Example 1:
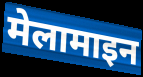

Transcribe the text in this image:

मेलामाइन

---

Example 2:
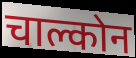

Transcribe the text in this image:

चाल्कोन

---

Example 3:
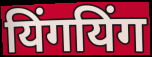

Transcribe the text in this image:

यिंगयिंग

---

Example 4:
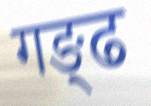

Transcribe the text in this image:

गङ्ढ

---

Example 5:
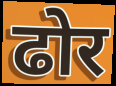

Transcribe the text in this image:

ढोर